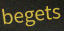
begets